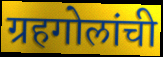
ग्रहगोलांची